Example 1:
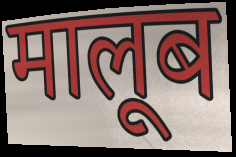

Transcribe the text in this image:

मालूब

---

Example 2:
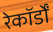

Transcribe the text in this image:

रेकॉर्डों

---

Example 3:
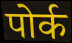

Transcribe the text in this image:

पोर्क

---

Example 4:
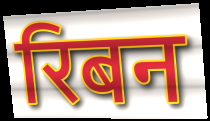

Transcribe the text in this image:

रिबन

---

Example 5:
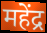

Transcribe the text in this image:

महेंद्र